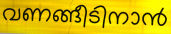
വണങ്ങീടിനാൻ